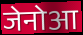
जेनोआ